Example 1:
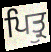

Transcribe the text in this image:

ਪਿਤ੍ਰੁ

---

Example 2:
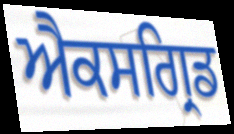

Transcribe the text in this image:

ਐਕਸਗ੍ਰਿਡ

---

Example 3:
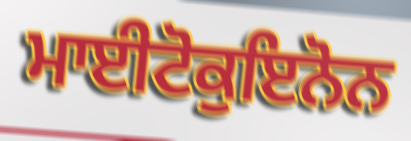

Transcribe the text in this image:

ਮਾਈਟੋਕੁਇਨੋਨ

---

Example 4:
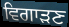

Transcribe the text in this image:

ਵਿਗਾੜਣ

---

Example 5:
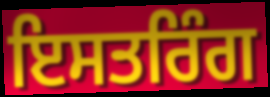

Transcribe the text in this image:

ਇਸਤਰਿੰਗ